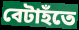
বেটাহঁতে